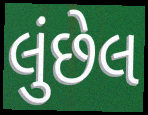
લુંછેલ